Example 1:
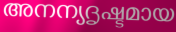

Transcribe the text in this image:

അനന്യദൃഷ്ടമായ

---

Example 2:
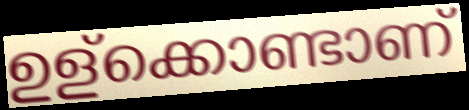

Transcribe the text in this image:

ഉള്ക്കൊണ്ടാണ്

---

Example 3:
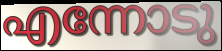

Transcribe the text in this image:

എന്നോടു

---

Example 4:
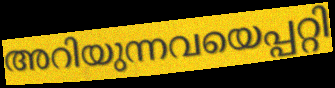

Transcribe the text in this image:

അറിയുന്നവയെപ്പറ്റി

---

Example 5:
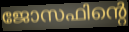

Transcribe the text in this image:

ജോസഫിന്റെ